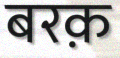
बरक़